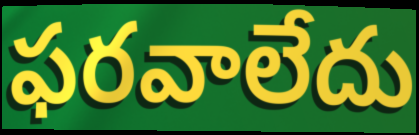
ఫరవాలేదు